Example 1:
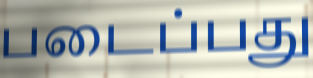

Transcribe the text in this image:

படைப்பது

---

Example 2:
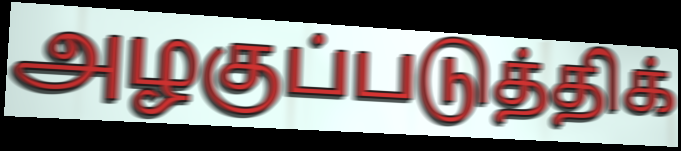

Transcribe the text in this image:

அழகுப்படுத்திக்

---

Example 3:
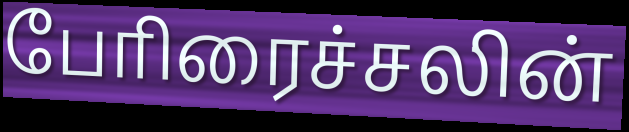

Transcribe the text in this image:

பேரிரைச்சலின்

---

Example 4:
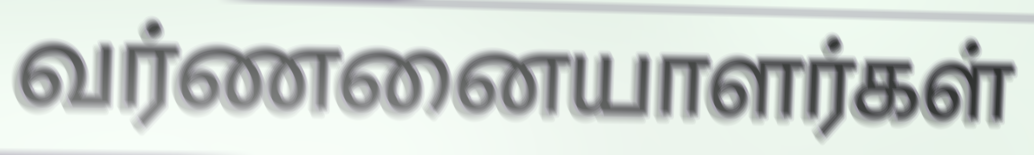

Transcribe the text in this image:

வர்ணனையாளர்கள்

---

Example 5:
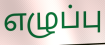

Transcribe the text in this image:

எழுப்பு